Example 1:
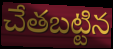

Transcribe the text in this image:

చేతబట్టిన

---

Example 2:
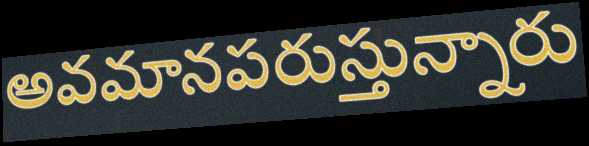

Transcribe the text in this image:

అవమానపరుస్తున్నారు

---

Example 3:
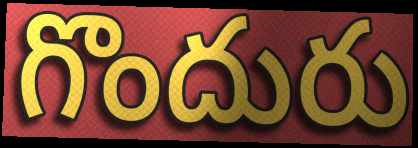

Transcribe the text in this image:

గొందురు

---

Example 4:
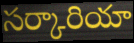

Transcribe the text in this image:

సర్కారియా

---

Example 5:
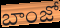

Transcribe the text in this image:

బాంజో